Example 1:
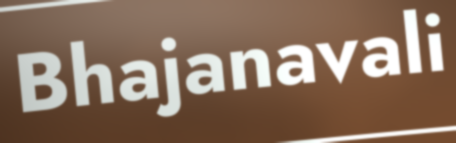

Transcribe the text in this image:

Bhajanavali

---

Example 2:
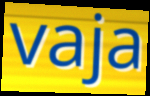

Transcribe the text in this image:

vaja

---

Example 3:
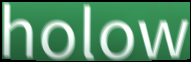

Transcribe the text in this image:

holow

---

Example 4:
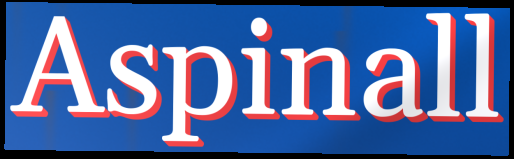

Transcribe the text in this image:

Aspinall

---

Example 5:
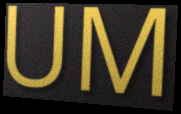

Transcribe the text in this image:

UM